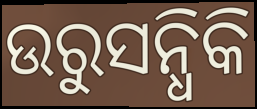
ଉରୁସନ୍ଧିକି